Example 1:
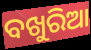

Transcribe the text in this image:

ବଖୁରିଆ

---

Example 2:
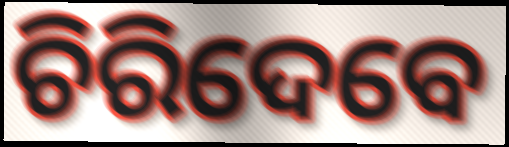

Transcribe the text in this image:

ଚିରିଦେବେ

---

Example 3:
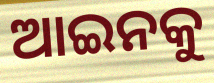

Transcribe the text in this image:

ଆଇନକୁ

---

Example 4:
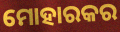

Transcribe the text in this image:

ମୋହାରକର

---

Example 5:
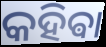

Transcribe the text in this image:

କହିଵା